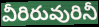
వీరిరువురినీ